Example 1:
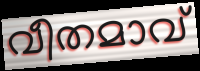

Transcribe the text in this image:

വീതമാവ്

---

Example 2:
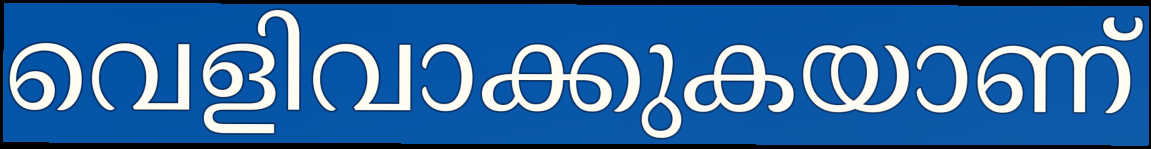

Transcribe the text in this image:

വെളിവാക്കുകയാണ്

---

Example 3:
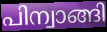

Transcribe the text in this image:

പിന്വാങ്ങി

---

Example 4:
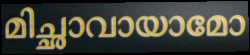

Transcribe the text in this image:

മിച്ഛാവായാമോ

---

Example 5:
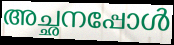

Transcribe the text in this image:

അച്ഛനപ്പോൾ